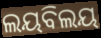
ଲୟବିଲୟ